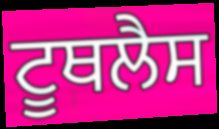
ਟੂਥਲੈਸ